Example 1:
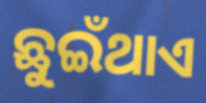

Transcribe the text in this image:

ଛୁଇଁଥାଏ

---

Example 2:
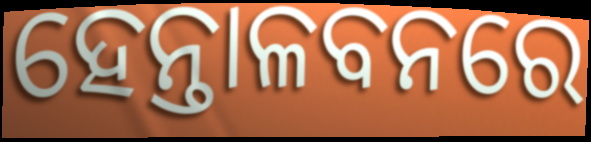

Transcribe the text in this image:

ହେନ୍ତାଳବନରେ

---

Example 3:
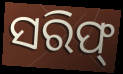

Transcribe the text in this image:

ସରିଫ୍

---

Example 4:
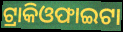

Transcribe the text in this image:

ଟ୍ରାକିଓଫାଇଟା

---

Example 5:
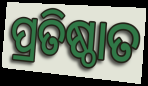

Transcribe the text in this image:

ପ୍ରତିଷ୍ଠାତ